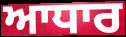
ਆਧਾਰ